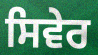
ਸਿਵੇਰ